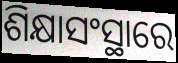
ଶିକ୍ଷାସଂସ୍ଥାରେ